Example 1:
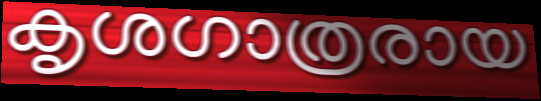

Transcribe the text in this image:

കൃശഗാത്രരായ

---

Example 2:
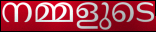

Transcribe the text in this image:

നമ്മളുടെ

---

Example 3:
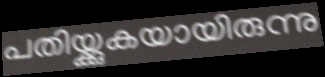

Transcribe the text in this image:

പതിയ്ക്കുകയായിരുന്നു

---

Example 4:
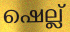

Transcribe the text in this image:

ഷെല്ല്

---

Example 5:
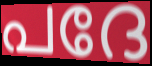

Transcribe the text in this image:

പദേ